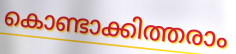
കൊണ്ടാക്കിത്തരാം